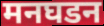
मनघडन